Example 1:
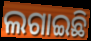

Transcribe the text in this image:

ଲଗାଇଛି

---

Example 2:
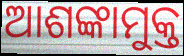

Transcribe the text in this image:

ଆଶଙ୍କାମୁକ୍ତ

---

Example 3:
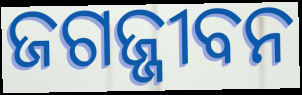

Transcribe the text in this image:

ଜଗଜ୍ଜୀବନ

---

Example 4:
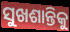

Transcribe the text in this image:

ସୁଖଶାନ୍ତିକୁ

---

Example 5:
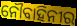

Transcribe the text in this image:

ନୌବାହିନୀର